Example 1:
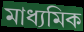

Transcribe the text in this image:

মাধ্যমিক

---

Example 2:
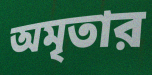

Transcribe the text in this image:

অমৃতার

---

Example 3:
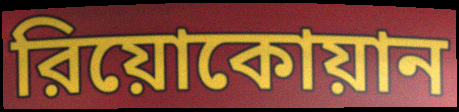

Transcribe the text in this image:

রিয়োকোয়ান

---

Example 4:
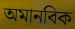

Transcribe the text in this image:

অমানবিক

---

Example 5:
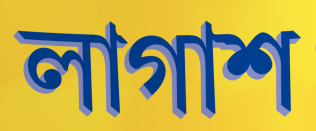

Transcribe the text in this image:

লাগাশ